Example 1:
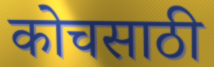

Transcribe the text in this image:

कोचसाठी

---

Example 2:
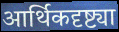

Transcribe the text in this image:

आर्थिकदृष्ट्या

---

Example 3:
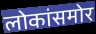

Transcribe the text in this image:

लोकांसमोर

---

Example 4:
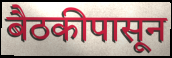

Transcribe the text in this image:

बैठकीपासून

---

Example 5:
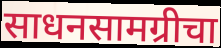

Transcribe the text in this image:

साधनसामग्रीचा